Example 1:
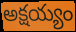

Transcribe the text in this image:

అక్షయ్యం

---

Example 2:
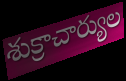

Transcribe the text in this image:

శుక్రాచార్యుల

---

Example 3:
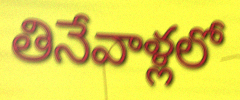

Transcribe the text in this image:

తినేవాళ్లలో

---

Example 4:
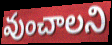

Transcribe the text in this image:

వుంచాలని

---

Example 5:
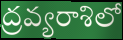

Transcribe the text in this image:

ద్రవ్యరాశిలో